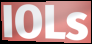
IOLs